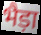
भैड़ा